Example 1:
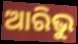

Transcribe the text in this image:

ଆରିଭୁ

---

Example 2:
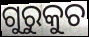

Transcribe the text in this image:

ଗୁରୁକୁଚ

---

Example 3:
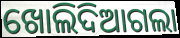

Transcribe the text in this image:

ଖୋଲିଦିଆଗଲା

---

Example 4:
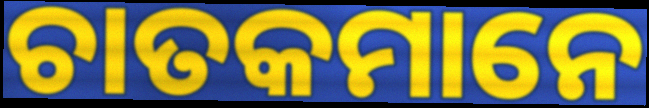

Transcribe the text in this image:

ଚାତକମାନେ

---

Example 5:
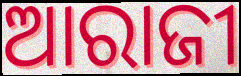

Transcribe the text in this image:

ଆରାଜୀ